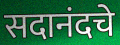
सदानंदचे